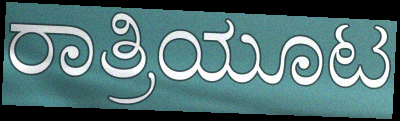
ರಾತ್ರಿಯೂಟ